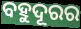
ବହୁଦୂରର